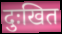
दुःखित